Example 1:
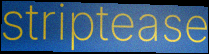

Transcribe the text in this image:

striptease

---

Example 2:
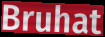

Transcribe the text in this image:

Bruhat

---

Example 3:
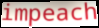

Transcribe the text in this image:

impeach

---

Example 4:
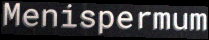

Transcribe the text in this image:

Menispermum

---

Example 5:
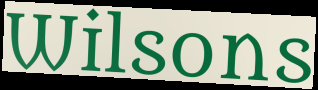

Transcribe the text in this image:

Wilsons